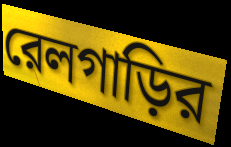
রেলগাড়ির